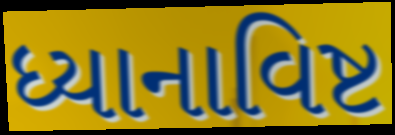
ધ્યાનાવિષ્ટ